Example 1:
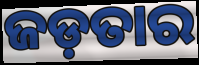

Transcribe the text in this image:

ଜଡ଼ତାର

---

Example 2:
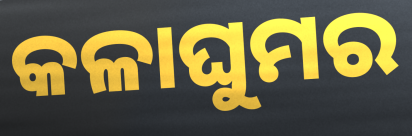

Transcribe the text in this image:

କଳାଘୁମର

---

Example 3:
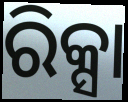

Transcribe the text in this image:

ରିକ୍ସା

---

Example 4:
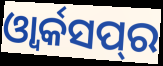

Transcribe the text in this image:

ଓ୍ୱାର୍କସପ୍‌ର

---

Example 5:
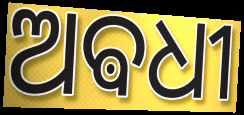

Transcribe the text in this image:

ଅଵଧୀ